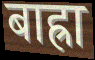
बाह्रा